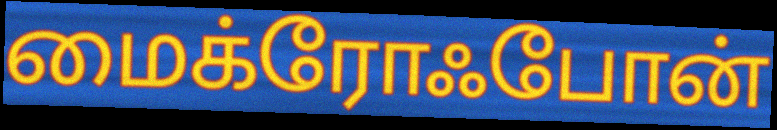
மைக்ரோஃபோன்